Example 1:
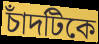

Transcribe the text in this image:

চাঁদটিকে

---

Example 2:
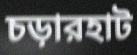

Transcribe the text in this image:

চড়ারহাট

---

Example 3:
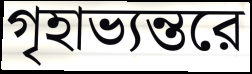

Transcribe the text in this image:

গৃহাভ্যন্তরে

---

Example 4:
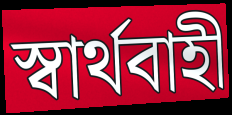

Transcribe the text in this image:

স্বার্থবাহী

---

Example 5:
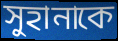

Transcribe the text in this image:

সুহানাকে